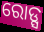
ରୋଡ୍ସ